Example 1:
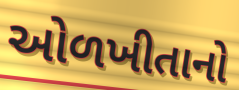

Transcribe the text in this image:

ઓળખીતાનો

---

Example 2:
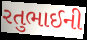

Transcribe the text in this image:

રતુભાઈની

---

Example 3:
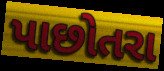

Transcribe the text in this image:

પાછોતરા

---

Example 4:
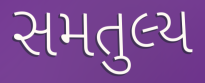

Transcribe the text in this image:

સમતુલ્ય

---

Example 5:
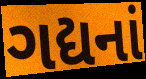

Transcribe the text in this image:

ગદ્યનાં